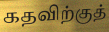
கதவிற்குத்